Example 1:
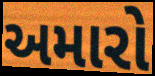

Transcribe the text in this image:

અમારો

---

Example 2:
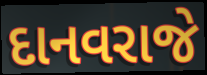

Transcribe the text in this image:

દાનવરાજે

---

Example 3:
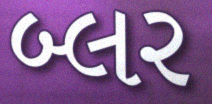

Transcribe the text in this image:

બ્લર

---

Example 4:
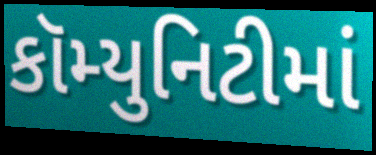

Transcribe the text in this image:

કૉમ્યુનિટીમાં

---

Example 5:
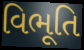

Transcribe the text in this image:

વિભૂતિ